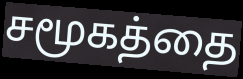
சமூகத்தை